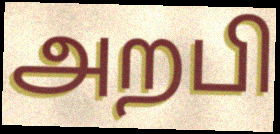
அறபி